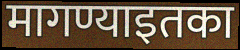
मागण्याइतका